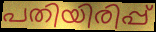
പതിയിരിപ്പ്